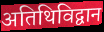
अतिथिविद्वान